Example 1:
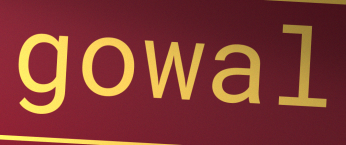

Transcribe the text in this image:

gowal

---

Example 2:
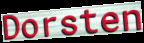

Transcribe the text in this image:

Dorsten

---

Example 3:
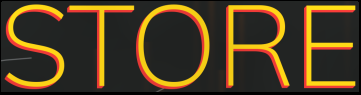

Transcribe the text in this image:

STORE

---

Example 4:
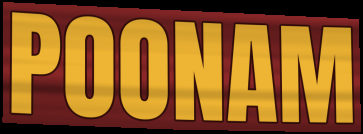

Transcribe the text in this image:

POONAM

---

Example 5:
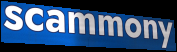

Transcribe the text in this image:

scammony